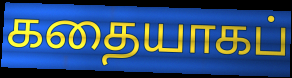
கதையாகப்